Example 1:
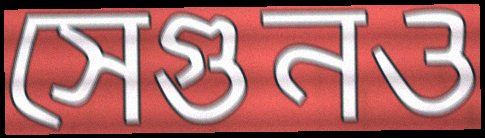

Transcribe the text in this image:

সেগুনও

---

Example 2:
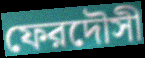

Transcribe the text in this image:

ফেরদৌসী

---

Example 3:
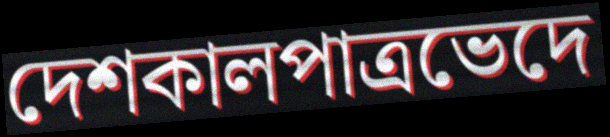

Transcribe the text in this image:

দেশকালপাত্রভেদে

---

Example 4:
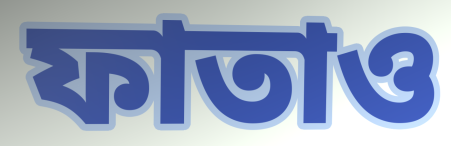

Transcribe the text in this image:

ফাতাও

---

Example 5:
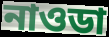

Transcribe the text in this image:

নাওডা